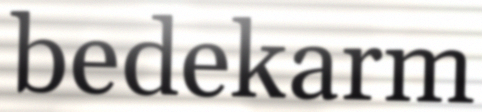
bedekarm